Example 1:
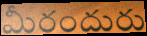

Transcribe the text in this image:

మీరందురు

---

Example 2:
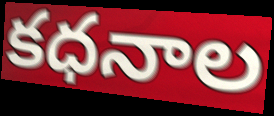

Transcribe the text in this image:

కధనాల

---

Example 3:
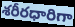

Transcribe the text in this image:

శరీరధారిగా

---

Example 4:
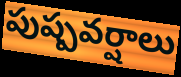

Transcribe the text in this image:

పుష్పవర్షాలు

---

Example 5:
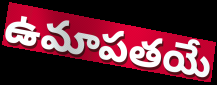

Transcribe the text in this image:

ఉమాపతయే